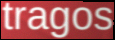
tragos